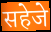
सहेजे